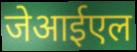
जेआईएल